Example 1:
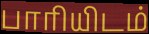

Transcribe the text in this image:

பாரியிடம்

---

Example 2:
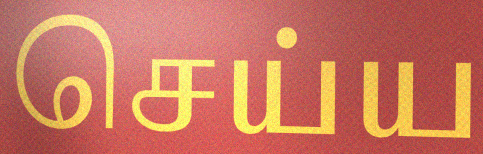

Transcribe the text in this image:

செய்ய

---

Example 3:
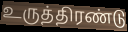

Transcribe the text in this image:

உருத்திரண்டு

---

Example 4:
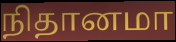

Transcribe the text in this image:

நிதானமா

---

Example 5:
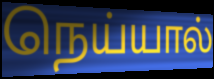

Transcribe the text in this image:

நெய்யால்